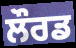
ਲੌਰਡ